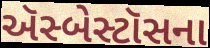
ઍસ્બેસ્ટૉસના